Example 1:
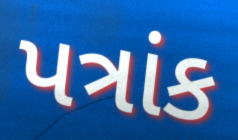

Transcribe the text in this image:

પત્રાંક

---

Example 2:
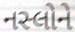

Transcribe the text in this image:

નસ્લોને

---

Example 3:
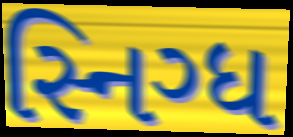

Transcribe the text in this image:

સ્નિગ્ધ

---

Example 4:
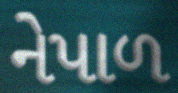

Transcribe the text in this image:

નેપાળ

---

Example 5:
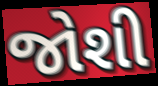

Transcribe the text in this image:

જોશી